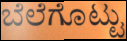
ಬೆಲೆಗೊಟ್ಟು